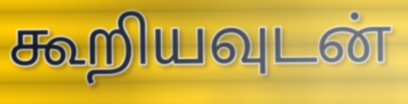
கூறியவுடன்